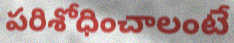
పరిశోధించాలంటే